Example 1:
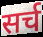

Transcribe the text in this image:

सर्च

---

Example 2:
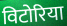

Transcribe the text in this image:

विटोरिया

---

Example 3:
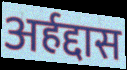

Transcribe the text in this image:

अर्हद्दास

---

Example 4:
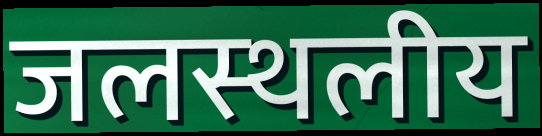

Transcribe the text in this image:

जलस्थलीय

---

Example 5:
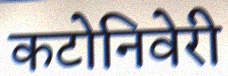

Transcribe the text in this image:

कटोनिवेरी